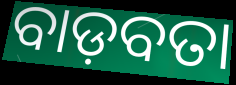
ବାଡ଼ବତା